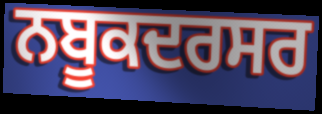
ਨਬੂਕਦਰਸਰ